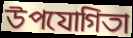
উপযোগিতা